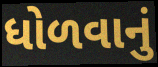
ધોળવાનું